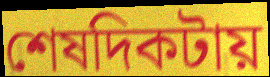
শেষদিকটায়